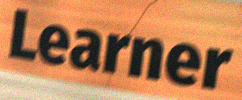
Learner